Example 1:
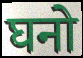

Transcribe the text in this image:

घनो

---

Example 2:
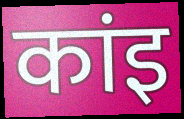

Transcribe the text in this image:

कांइ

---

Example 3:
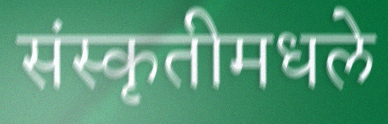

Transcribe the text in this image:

संस्कृतीमधले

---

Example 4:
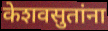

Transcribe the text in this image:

केशवसुतांना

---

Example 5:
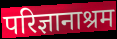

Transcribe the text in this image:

परिज्ञानाश्रम